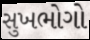
સુખભોગો